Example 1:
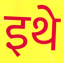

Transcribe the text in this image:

इथे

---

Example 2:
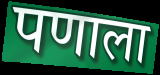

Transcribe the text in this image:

पणाला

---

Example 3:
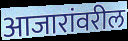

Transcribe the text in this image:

आजारांवरील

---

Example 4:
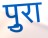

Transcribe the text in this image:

पु॒रा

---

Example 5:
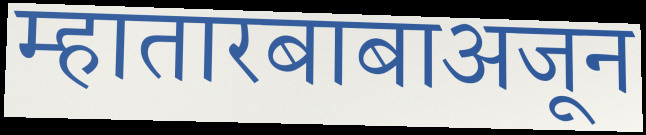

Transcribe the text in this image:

म्हातारबाबाअजून